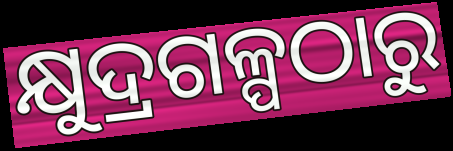
କ୍ଷୁଦ୍ରଗଳ୍ପଠାରୁ